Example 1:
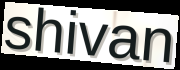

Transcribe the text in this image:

shivan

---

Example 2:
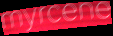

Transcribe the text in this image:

myrcene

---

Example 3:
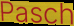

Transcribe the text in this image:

Pasch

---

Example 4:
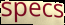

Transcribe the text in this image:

specs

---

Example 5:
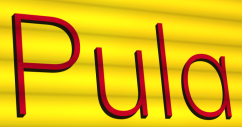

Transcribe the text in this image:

Pula